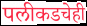
पलीकडचेही